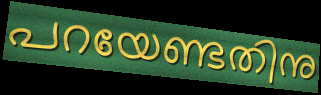
പറയേണ്ടതിനു